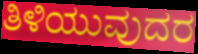
ತಿಳಿಯುವುದರ